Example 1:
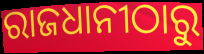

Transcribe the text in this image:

ରାଜଧାନୀଠାରୁ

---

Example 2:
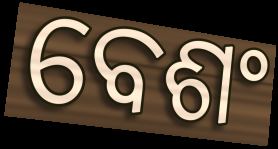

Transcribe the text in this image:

ବେଶଂ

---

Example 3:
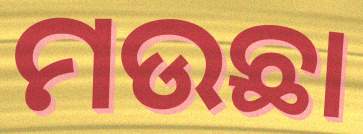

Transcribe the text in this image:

ମଉଛା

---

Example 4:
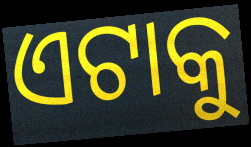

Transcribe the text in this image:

ଏଟାକୁ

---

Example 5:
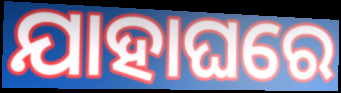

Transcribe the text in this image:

ଯାହାଘରେ